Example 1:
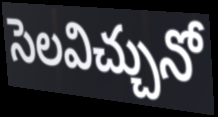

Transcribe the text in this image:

సెలవిచ్చునో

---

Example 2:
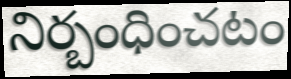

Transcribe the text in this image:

నిర్బంధించటం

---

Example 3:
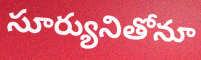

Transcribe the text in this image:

సూర్యునితోనూ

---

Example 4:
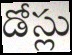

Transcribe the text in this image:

డోస్లు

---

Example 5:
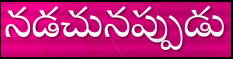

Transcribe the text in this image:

నడచునప్పుడు